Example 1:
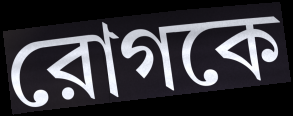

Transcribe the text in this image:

রোগকে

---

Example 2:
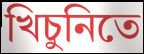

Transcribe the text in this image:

খিচুনিতে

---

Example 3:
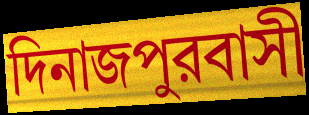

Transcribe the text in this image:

দিনাজপুরবাসী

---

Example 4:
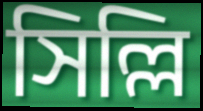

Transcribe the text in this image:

সিল্লি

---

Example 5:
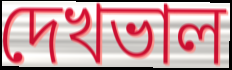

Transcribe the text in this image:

দেখভাল